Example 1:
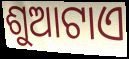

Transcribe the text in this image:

ଶୁଆଟାଏ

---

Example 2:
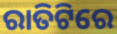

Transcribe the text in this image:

ରାତିଟିରେ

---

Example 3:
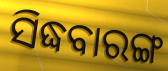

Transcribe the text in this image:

ସିଦ୍ଧବାରଙ୍ଗ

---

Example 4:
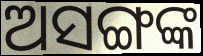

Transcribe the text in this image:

ଅସଙ୍ଗଙ୍କ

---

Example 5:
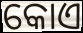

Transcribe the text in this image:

କୋଏ